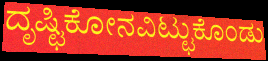
ದೃಷ್ಟಿಕೋನವಿಟ್ಟುಕೊಂಡು